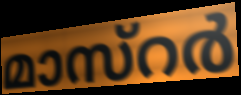
മാസ്റർ